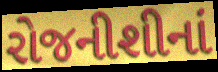
રોજનીશીનાં